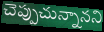
చెప్పుచున్నానని